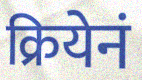
क्रियेनं